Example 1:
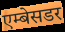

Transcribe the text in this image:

एम्‍बेसडर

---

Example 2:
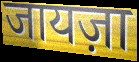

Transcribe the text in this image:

जायज़ा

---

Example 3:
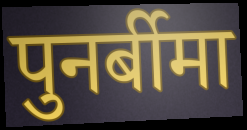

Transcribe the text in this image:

पुनर्बीमा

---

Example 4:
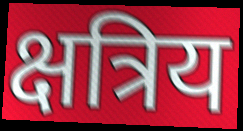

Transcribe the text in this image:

क्षत्रिय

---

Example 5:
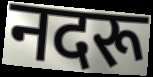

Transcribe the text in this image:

नदरू